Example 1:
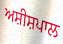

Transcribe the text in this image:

ਅਸ਼ੀਸ਼ਪਾਲ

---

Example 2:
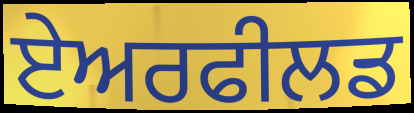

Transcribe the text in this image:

ਏਅਰਫੀਲਡ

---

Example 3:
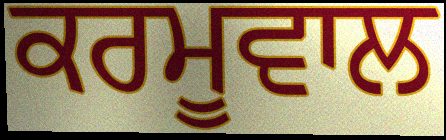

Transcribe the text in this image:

ਕਰਮੂਵਾਲ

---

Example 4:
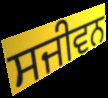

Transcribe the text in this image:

ਸਜੀਵਨ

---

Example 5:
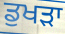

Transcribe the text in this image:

ਡੁਖੜਾ